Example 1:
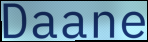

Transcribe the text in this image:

Daane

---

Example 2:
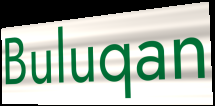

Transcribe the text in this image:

Buluqan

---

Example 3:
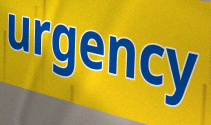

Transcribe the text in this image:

urgency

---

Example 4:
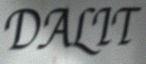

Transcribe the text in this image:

DALIT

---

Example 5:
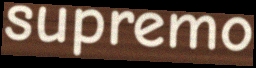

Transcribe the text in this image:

supremo